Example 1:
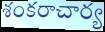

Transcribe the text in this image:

శంకరాచార్య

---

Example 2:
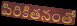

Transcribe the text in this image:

పిరికితనంతో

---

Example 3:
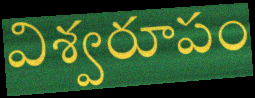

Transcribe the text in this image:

విశ్వరూపం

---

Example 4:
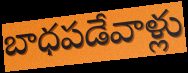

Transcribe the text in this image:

బాధపడేవాళ్లు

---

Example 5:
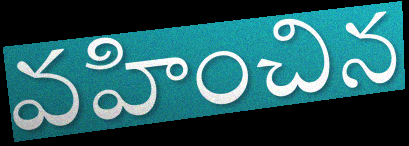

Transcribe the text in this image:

వహించిన